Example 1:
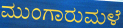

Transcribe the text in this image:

ಮುಂಗಾರುಮಳೆ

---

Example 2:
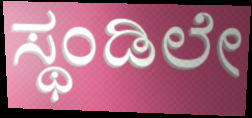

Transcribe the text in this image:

ಸ್ಥಂಡಿಲೇ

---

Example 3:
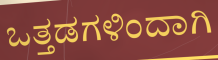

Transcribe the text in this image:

ಒತ್ತಡಗಳಿಂದಾಗಿ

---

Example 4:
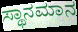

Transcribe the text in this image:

ಸ್ಥಾನಮಾನ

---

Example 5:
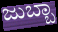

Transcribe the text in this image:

ಜುಬ್ಬಾ